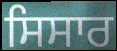
ਸਿਸਾਰ